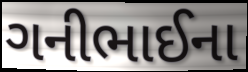
ગનીભાઈના